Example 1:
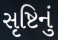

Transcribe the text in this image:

સૃષ્ટિનું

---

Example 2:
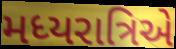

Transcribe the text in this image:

મધ્યરાત્રિએ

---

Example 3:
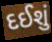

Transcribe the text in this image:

દઈશું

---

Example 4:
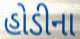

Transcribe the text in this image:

હોડીના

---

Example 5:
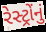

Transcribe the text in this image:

રેસ્ટ્રોંનું